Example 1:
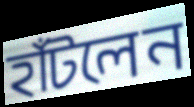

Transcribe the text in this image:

হাঁটলেন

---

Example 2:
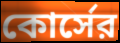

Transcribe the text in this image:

কোর্সের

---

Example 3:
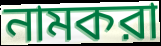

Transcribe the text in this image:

নামকরা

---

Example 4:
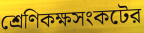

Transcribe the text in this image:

শ্রেণিকক্ষসংকটের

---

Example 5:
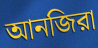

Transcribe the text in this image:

আনজিরা